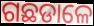
ଗଛଡାଳେ